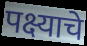
पक्ष्याचे